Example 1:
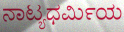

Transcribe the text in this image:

ನಾಟ್ಯಧರ್ಮಿಯ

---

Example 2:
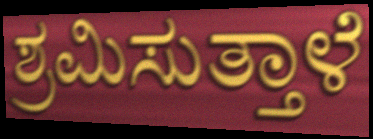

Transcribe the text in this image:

ಶ್ರಮಿಸುತ್ತಾಳೆ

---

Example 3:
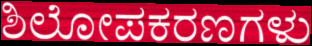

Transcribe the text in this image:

ಶಿಲೋಪಕರಣಗಳು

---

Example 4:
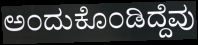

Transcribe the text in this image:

ಅಂದುಕೊಂಡಿದ್ದೆವು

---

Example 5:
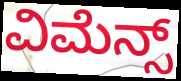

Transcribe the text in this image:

ವಿಮೆನ್ಸ್